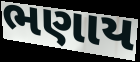
ભણાય